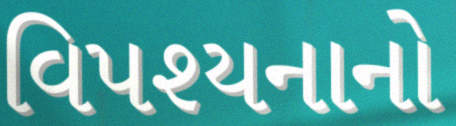
વિપશ્યનાનો